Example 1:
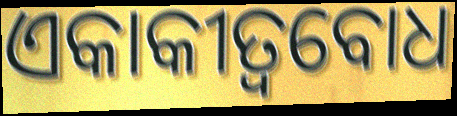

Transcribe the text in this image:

ଏକାକୀତ୍ୱବୋଧ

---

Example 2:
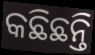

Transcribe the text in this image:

କଛିଛନ୍ତି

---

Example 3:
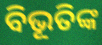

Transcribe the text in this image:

ବିଭୂତିଙ୍କ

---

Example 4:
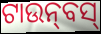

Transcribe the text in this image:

ଟାଉନ୍‍ବସ୍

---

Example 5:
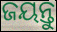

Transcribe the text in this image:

ଜୟନ୍ତୁ